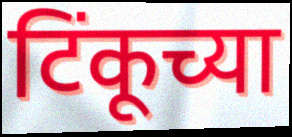
टिंकूच्या